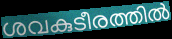
ശവകുടീരത്തിൽ